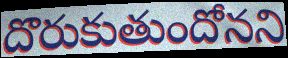
దొరుకుతుందోనని